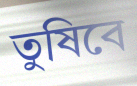
তুষিবে